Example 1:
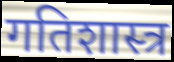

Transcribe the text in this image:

गतिशास्त्र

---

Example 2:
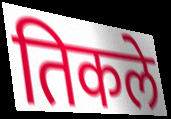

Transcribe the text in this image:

तिकले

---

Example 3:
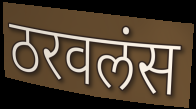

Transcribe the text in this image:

ठरवलंस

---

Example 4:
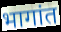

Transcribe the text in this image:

भागांत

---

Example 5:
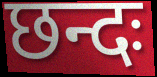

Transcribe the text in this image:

छन्दः